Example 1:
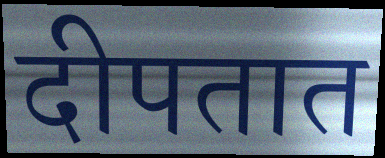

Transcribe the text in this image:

दीपतात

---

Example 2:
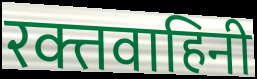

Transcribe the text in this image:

रक्तवाहिनी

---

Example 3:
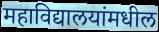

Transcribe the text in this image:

महाविद्यालयांमधील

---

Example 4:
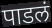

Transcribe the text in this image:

पाडलं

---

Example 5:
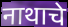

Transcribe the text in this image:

नाथाचे